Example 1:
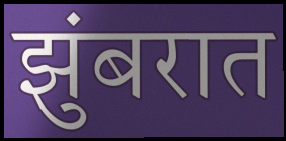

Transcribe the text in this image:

झुंबरात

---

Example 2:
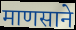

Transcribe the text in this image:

माणसाने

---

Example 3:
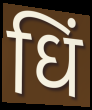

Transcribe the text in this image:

धिं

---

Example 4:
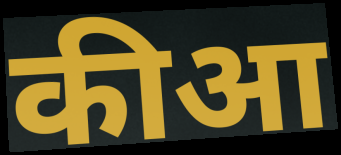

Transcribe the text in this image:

कीआ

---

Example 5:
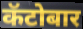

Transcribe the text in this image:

कॅटोबार